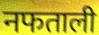
नफताली